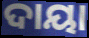
ଦାୟା